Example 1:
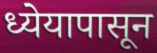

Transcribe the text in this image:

ध्येयापासून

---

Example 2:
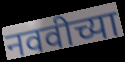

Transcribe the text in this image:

नववीच्या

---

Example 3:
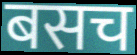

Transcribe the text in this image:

बसच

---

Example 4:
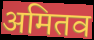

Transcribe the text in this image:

अमितव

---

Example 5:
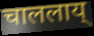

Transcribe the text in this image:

चाललाय्